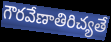
గౌరవేణాతిరిచ్యతే